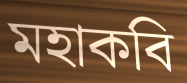
মহাকবি